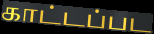
காட்டப்பட